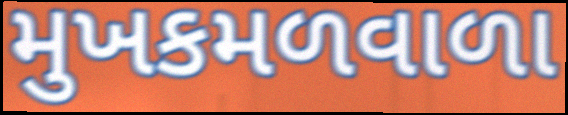
મુખકમળવાળા